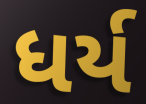
ધર્ય